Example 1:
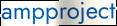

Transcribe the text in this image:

ampproject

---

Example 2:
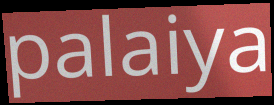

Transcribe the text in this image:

palaiya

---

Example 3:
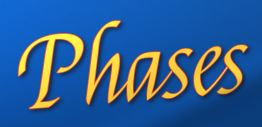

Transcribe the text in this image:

Phases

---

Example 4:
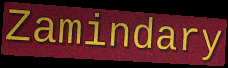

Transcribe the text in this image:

Zamindary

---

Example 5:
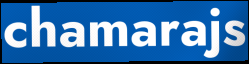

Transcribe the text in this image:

chamarajs